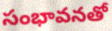
సంభావనతో